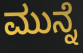
ಮುನ್ನೆ